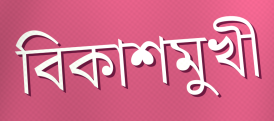
বিকাশমুখী